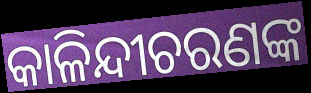
କାଳିନ୍ଦୀଚରଣଙ୍କ